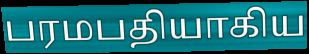
பரமபதியாகிய